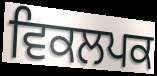
ਵਿਕਲਪਕ